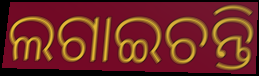
ଲଗାଇଚନ୍ତି